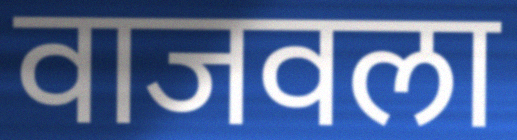
वाजवला